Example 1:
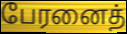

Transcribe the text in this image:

பேரனைத்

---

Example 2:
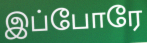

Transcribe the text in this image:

இப்போரே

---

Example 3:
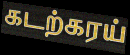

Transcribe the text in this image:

கடற்கரய்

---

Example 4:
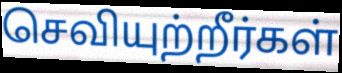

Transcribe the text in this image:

செவியுற்றீர்கள்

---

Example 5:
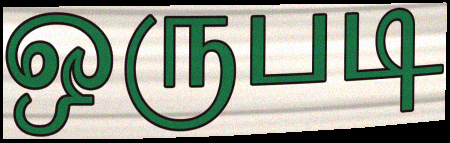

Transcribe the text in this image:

ஒருபடி